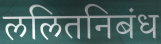
ललितनिबंध